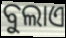
ବୁଲାଏ